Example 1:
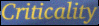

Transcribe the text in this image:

Criticality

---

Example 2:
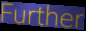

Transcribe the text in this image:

Further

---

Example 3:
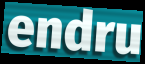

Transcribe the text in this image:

endru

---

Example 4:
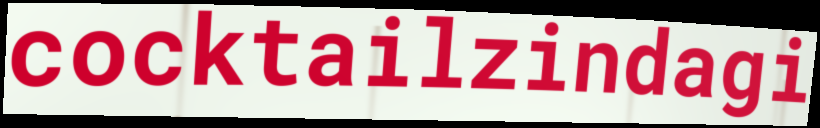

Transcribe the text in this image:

cocktailzindagi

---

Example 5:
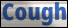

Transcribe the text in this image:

Cough